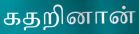
கதறினான்